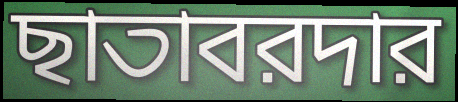
ছাতাবরদার